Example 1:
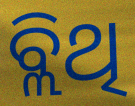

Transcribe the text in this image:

ବ୍ଲିଥି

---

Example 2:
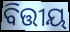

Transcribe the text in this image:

ବିତ୍ତୀୟ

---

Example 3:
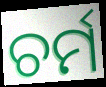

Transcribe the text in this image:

ଚର୍ମ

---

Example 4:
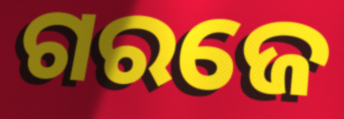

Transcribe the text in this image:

ଗରଜେ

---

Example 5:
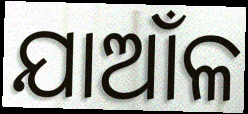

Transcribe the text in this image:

ଯାଆଁଳ